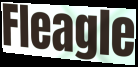
Fleagle